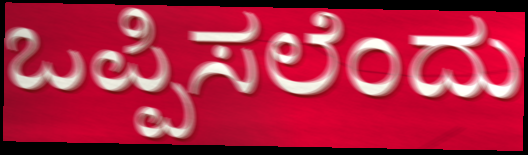
ಒಪ್ಪಿಸಲೆಂದು